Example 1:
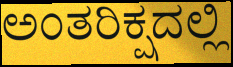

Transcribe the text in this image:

ಅಂತರಿಕ್ಷದಲ್ಲಿ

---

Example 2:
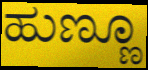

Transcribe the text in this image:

ಹುಣ್ಣೂ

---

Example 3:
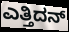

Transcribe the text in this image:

ಎತ್ತಿದನ್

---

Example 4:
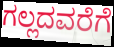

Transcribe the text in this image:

ಗಲ್ಲದವರೆಗೆ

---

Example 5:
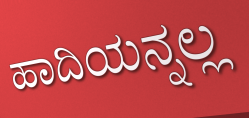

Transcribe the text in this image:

ಹಾದಿಯನ್ನಲ್ಲ